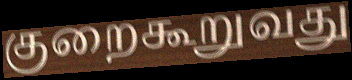
குறைகூறுவது